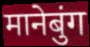
मानेबुंग